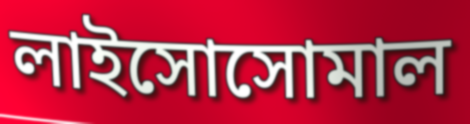
লাইসোসোমাল